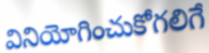
వినియోగించుకోగలిగే